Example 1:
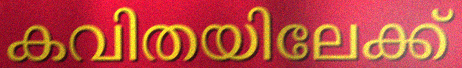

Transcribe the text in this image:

കവിതയിലേക്ക്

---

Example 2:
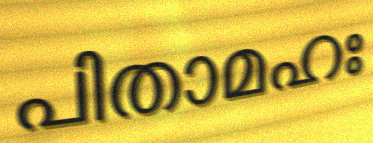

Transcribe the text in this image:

പിതാമഹഃ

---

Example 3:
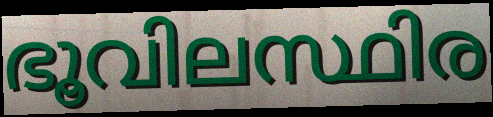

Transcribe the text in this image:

ഭൂവിലസ്ഥിര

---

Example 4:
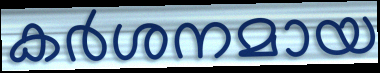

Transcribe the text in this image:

കർശനമായ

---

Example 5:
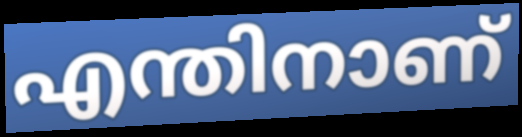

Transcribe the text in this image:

എന്തിനാണ്